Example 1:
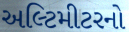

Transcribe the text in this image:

અલ્ટિમીટરનો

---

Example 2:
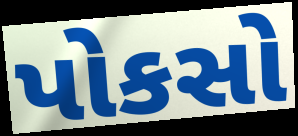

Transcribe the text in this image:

પોકસો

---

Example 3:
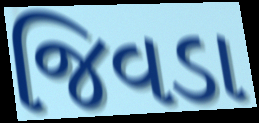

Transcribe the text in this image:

જિવડા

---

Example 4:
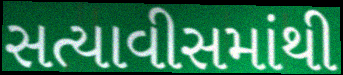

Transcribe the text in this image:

સત્યાવીસમાંથી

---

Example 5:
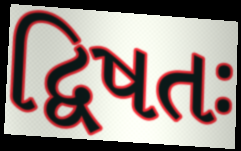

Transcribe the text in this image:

દ્વિષતઃ